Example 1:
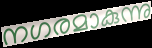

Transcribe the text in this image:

നഗരമാകുന്നു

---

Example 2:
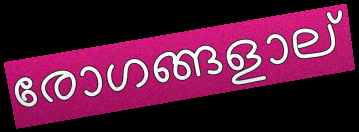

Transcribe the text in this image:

രോഗങ്ങളാല്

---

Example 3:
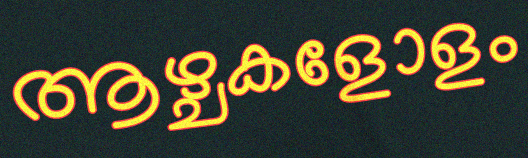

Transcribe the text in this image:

ആഴ്ചകളോളം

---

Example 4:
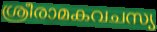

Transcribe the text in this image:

ശ്രീരാമകവചസ്യ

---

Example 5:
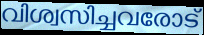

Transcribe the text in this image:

വിശ്വസിച്ചവരോട്